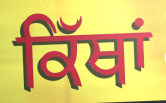
ਕਿੱਥਾਂ